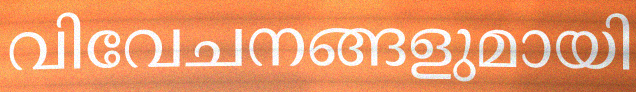
വിവേചനങ്ങളുമായി